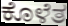
ಕೊಳೆತ